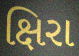
ક્ષિરા